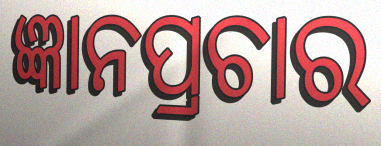
ଜ୍ଞାନପ୍ରଚାର